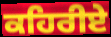
ਕਹਿਰੀਏ